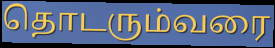
தொடரும்வரை